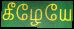
கீழேயே